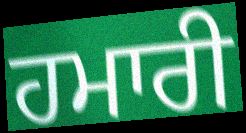
ਹਮਾਰੀ